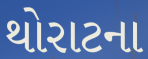
થોરાટના